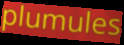
plumules